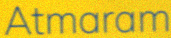
Atmaram